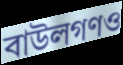
বাউলগণও